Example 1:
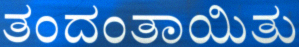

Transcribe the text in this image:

ತಂದಂತಾಯಿತು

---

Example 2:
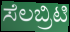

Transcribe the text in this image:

ಸೆಲಬ್ರಿಟಿ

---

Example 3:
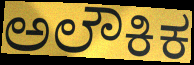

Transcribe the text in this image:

ಅಲೌಕಿಕ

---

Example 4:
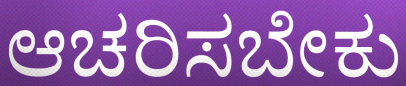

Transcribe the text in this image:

ಆಚರಿಸಬೇಕು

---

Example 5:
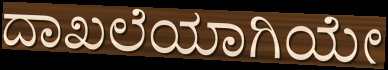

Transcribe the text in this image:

ದಾಖಲೆಯಾಗಿಯೇ